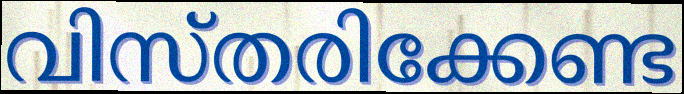
വിസ്തരിക്കേണ്ട